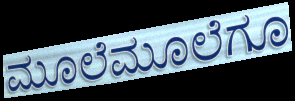
ಮೂಲೆಮೂಲೆಗೂ